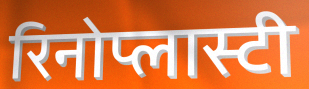
रिनोप्लास्टी